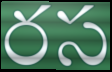
రస